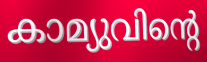
കാമ്യുവിന്റെ